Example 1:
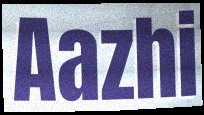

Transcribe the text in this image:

Aazhi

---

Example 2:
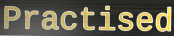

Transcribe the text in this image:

Practised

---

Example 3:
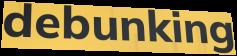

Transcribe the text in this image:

debunking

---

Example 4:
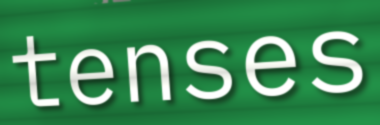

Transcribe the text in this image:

tenses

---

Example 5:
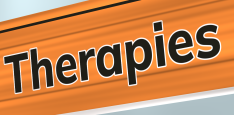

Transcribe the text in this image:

Therapies